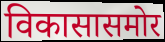
विकासासमोर